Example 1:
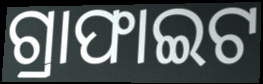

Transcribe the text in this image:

ଗ୍ରାଫାଇଟ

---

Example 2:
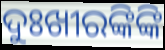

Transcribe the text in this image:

ଦୁଃଖୀରଙ୍କିଙ୍କି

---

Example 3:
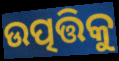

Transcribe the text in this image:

ଉତ୍ପତ୍ତିକୁ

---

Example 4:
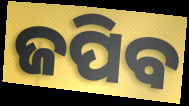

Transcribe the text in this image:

ଜପିବ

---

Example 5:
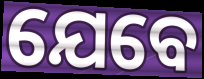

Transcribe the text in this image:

ଯେବେ